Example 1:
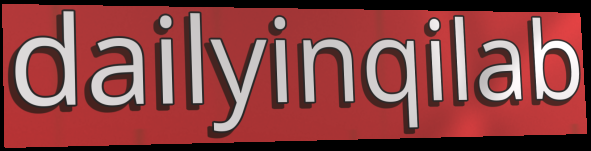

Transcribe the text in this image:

dailyinqilab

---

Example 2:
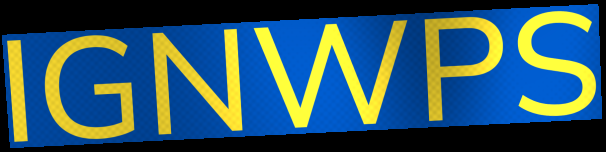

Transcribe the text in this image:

IGNWPS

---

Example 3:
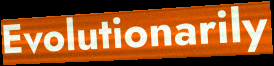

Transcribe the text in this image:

Evolutionarily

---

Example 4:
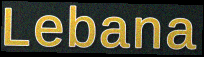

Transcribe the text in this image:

Lebana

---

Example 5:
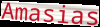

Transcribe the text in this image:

Amasias